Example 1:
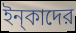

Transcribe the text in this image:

ইন্‌কাদের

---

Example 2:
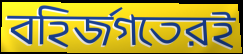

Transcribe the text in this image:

বহির্জগতেরই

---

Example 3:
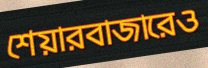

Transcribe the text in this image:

শেয়ারবাজারেও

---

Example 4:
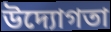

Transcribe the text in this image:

উদ্যোগতা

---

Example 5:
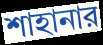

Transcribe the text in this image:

শাহানার